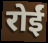
रोईं